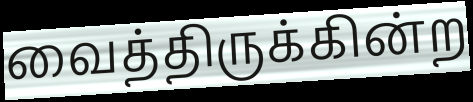
வைத்திருக்கின்ற